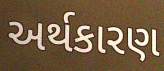
અર્થકારણ